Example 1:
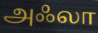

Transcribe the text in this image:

அஃலா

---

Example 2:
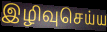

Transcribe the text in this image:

இழிவுசெய்ய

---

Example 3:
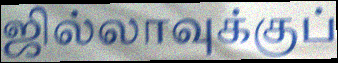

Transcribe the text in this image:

ஜில்லாவுக்குப்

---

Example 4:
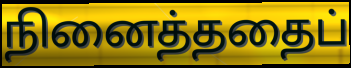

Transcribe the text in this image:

நினைத்ததைப்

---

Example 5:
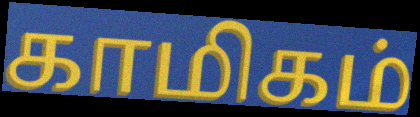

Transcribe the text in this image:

காமிகம்